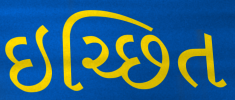
ઇચ્છિત